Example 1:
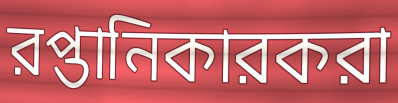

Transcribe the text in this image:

রপ্তানিকারকরা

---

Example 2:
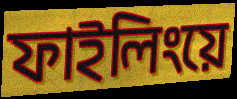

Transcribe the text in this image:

ফাইলিংয়ে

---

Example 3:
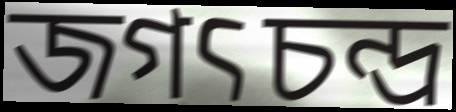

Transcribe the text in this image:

জগৎচন্দ্র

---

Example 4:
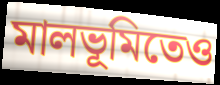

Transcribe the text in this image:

মালভূমিতেও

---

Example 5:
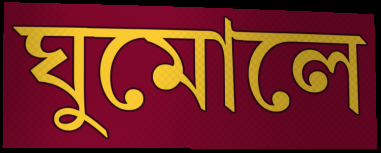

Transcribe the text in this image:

ঘুমোলে